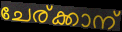
ചേര്ക്കാന്